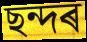
ছন্দৰ